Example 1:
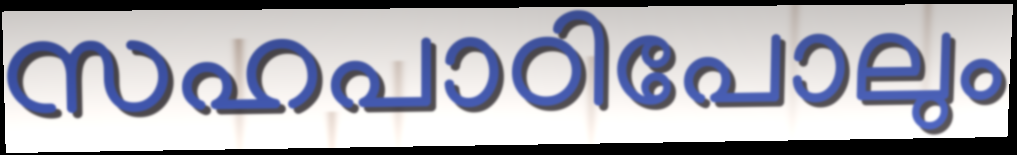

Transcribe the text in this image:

സഹപാഠിപോലും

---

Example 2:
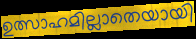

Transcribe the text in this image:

ഉത്സാഹമില്ലാതെയായി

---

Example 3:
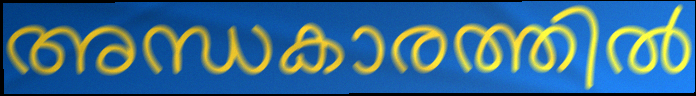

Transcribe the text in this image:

അന്ധകാരത്തിൽ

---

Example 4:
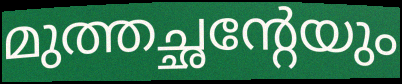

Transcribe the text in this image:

മുത്തച്ഛന്റേയും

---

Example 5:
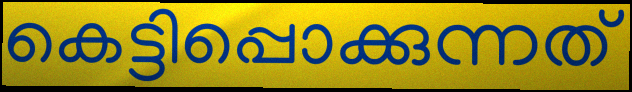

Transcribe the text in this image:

കെട്ടിപ്പൊക്കുന്നത്